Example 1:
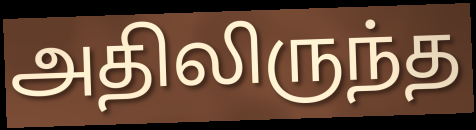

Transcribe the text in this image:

அதிலிருந்த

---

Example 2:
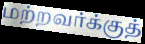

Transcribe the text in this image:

மற்றவர்க்குத்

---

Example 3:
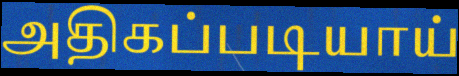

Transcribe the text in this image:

அதிகப்படியாய்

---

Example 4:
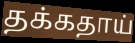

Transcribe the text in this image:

தக்கதாய்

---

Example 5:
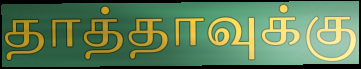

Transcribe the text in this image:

தாத்தாவுக்கு